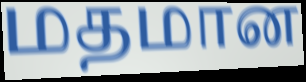
மதமான